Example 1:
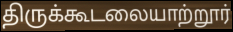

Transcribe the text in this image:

திருக்கூடலையாற்றூர்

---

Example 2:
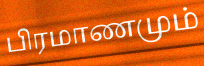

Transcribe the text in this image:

பிரமாணமும்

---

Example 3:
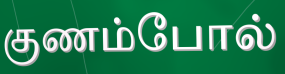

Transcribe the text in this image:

குணம்போல்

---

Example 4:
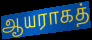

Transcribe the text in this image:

ஆயராகத்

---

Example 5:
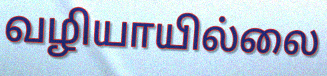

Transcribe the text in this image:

வழியாயில்லை